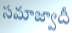
సమాజ్వాదీ